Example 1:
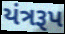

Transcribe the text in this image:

યંત્રરૂપ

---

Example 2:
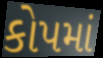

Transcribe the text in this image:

કોપમાં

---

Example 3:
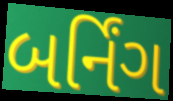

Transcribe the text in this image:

બર્નિંગ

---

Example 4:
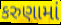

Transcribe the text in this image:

કરુણામાં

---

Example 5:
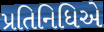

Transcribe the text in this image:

પ્રતિનિધિએ